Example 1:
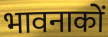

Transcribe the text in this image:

भावनाकों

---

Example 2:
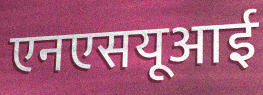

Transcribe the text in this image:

एनएसयूआई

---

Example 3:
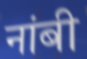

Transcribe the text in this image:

नांबी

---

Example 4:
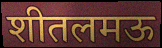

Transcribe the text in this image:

शीतलमऊ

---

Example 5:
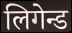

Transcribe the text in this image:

लिगेन्ड